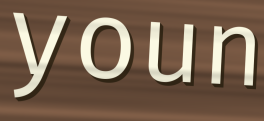
youn